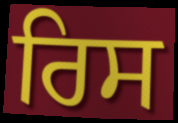
ਰਿਸ